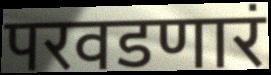
परवडणारं